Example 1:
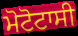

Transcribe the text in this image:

ਮੋਟੋਟਾਸੀ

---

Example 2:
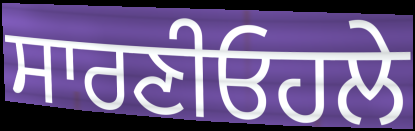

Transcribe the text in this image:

ਸਾਰਣੀਓਹਲੇ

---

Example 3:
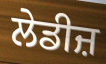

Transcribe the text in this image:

ਲੇਡੀਜ਼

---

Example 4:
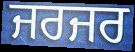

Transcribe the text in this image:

ਜਰਜਰ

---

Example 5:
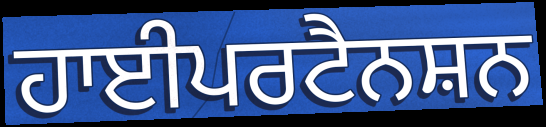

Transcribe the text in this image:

ਹਾਈਪਰਟੈਨਸ਼ਨ